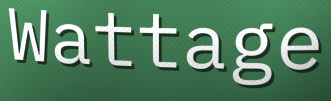
Wattage